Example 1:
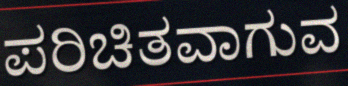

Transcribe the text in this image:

ಪರಿಚಿತವಾಗುವ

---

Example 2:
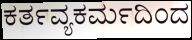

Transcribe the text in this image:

ಕರ್ತವ್ಯಕರ್ಮದಿಂದ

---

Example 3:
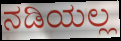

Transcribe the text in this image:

ನಡಿಯಲ್ಲ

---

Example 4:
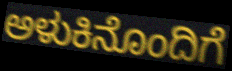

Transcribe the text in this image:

ಅಳುಕಿನೊಂದಿಗೆ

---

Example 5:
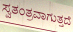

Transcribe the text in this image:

ಸ್ವತಂತ್ರವಾಗುತ್ತದೆ